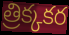
త్రిక్కకర